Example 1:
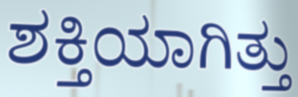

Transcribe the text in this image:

ಶಕ್ತಿಯಾಗಿತ್ತು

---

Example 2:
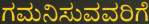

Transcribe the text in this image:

ಗಮನಿಸುವವರಿಗೆ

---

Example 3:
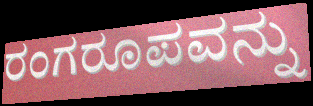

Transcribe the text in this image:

ರಂಗರೂಪವನ್ನು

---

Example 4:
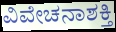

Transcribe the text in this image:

ವಿವೇಚನಾಶಕ್ತಿ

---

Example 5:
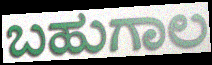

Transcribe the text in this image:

ಬಹುಗಾಲ